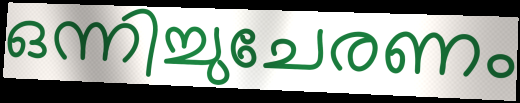
ഒന്നിച്ചുചേരണം